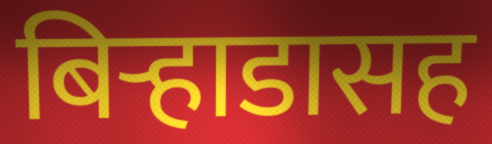
बिऱ्हाडासह